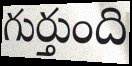
గుర్తుంది